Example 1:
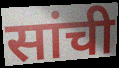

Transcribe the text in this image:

सांची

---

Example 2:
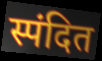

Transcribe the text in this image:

स्पंदित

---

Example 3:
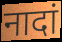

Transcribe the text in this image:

नादां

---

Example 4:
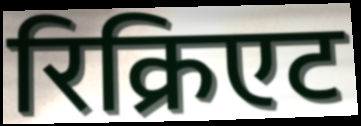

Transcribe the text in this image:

रिक्रिएट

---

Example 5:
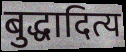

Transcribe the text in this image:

बुद्धादित्य